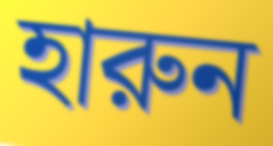
হারুন